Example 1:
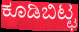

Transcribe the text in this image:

ಕೂಡಿಬಿಟ್ಟ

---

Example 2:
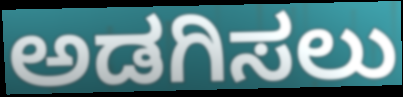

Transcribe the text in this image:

ಅಡಗಿಸಲು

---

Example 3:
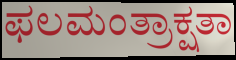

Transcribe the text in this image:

ಫಲಮಂತ್ರಾಕ್ಷತಾ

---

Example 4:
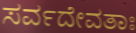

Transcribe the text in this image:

ಸರ್ವದೇವತಾಃ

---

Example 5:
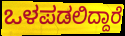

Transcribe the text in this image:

ಒಳಪಡಲಿದ್ದಾರೆ